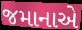
જમાનાએ